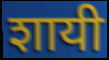
शायी